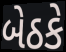
બેઠકે